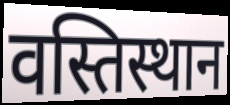
वस्तिस्थान